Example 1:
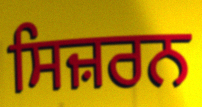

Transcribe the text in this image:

ਸਿਜ਼ਰਨ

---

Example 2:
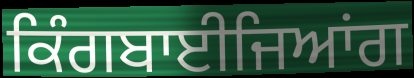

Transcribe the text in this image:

ਕਿੰਗਬਾਈਜਿਆਂਗ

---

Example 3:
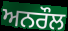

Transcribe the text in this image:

ਅਨਰੌਲ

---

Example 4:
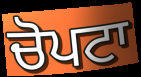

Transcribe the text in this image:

ਚੋਪਟਾ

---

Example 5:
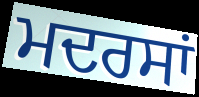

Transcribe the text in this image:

ਮਦਰਸਾਂ